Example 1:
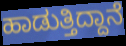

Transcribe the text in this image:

ಹಾಡುತ್ತಿದ್ದಾನೆ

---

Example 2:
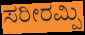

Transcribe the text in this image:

ಸರೀರಮ್ಪಿ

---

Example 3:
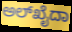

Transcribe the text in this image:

ಅಲ್‌ಖೈದಾ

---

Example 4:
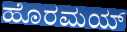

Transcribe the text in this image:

ಹೊರಮಯ್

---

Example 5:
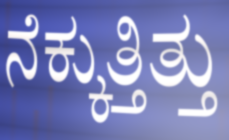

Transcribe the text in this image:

ನೆಕ್ಕುತ್ತಿತ್ತು